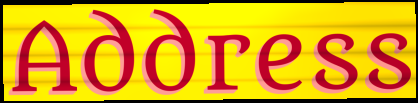
Address